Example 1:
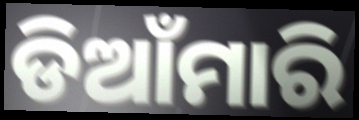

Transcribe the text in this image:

ଡିଆଁମାରି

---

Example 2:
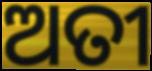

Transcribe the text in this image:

ଅତୀ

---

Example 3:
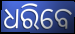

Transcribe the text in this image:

ଧରିବେ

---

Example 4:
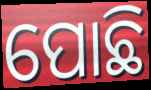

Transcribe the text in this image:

ପୋଛି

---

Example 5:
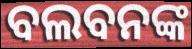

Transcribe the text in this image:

ବଲବନଙ୍କ